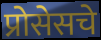
प्रोसेसचे